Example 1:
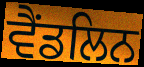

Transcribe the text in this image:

ਵੈਂਡਲਿਨ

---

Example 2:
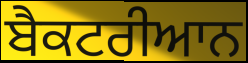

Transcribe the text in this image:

ਬੈਕਟਰੀਆਨ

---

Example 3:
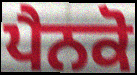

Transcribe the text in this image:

ਪੈਨਕੋ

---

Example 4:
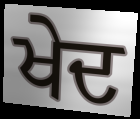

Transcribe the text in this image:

ਖੇਦ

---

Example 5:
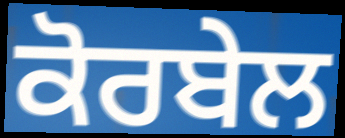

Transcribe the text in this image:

ਕੋਰਬੇਲ